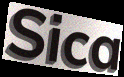
Sica